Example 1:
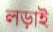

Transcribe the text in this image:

লড়াই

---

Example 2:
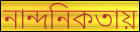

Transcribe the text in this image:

নান্দনিকতায়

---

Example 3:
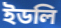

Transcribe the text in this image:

ইডলি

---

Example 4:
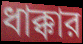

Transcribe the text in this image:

ধাক্কার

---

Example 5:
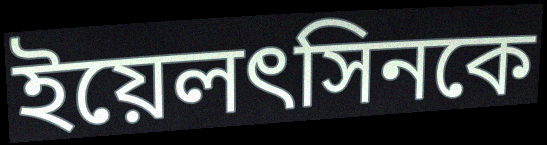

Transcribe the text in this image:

ইয়েলৎসিনকে